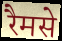
रैमसे